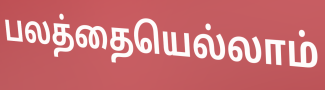
பலத்தையெல்லாம்